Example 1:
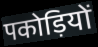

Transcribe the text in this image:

पकोड़ियों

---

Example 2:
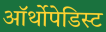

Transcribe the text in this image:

ऑर्थोपेडिस्ट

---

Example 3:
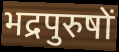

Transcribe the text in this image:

भद्रपुरुषों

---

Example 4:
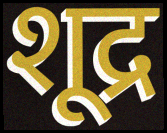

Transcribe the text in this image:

शूद्र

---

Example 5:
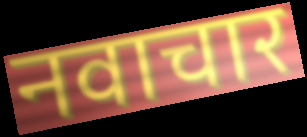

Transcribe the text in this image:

नवाचार